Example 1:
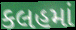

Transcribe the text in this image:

કલહમાં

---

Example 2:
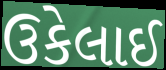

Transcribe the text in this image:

ઉકેલાઈ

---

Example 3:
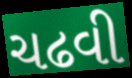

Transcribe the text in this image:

ચઢવી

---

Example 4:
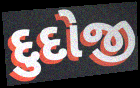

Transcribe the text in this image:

દુદોજી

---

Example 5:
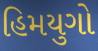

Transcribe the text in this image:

હિમયુગો